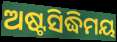
ଅଷ୍ଟସିଦ୍ଧିମୟ